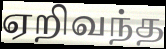
ஏறிவந்த